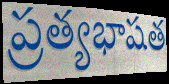
ప్రత్యభాషత